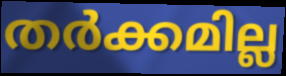
തർക്കമില്ല